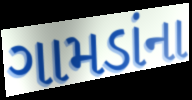
ગામડાંના